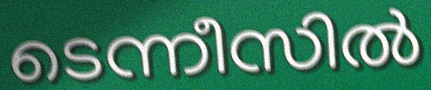
ടെന്നീസിൽ